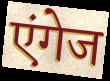
एंगेज